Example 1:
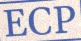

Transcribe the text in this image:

ECP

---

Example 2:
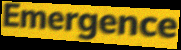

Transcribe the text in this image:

Emergence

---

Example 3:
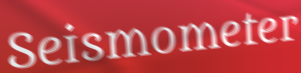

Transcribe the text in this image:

Seismometer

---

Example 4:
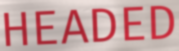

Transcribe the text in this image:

HEADED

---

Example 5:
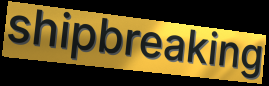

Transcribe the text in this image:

shipbreaking